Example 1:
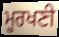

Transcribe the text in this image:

ਮੂਰਖਣੀ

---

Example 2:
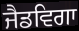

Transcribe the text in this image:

ਜੈਡਵਿਗਾ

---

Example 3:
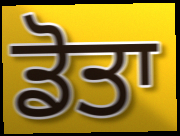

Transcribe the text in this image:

ਡੋਤਾ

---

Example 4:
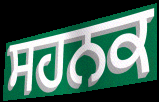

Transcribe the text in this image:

ਸਹਨਕ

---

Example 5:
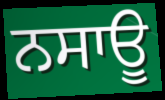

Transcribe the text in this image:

ਨਸਾਊ